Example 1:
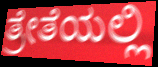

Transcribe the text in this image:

ತ್ರೇತೆಯಲ್ಲಿ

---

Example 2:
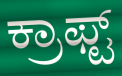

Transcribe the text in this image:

ಕ್ರಾಫ್ಟ್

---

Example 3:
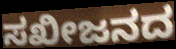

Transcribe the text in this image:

ಸಖೀಜನದ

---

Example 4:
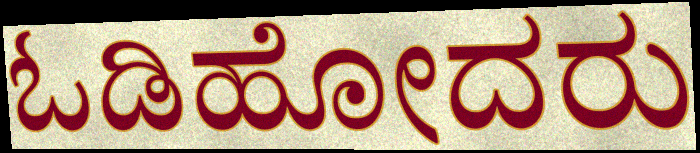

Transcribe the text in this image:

ಓಡಿಹೋದರು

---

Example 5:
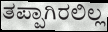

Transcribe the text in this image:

ತಪ್ಪಾಗಿರಲಿಲ್ಲ